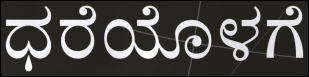
ಧರೆಯೊಳಗೆ